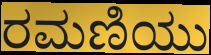
ರಮಣಿಯು